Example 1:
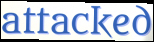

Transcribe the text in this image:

attacked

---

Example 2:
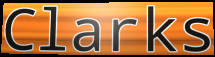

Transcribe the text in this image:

Clarks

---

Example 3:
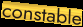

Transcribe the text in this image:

constable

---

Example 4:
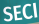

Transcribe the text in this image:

SECI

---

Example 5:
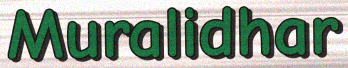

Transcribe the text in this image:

Muralidhar